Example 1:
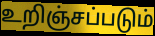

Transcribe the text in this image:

உறிஞ்சப்படும்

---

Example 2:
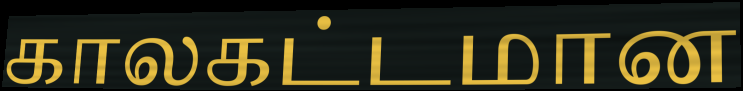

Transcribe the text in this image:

காலகட்டமான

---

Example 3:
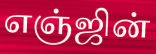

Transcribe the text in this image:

எஞ்ஜின்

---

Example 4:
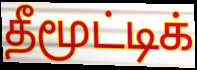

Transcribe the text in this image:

தீமூட்டிக்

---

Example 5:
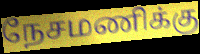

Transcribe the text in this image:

நேசமணிக்கு